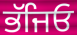
ਭੱਜਿਓ